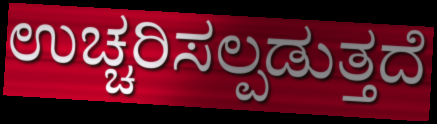
ಉಚ್ಚರಿಸಲ್ಪಡುತ್ತದೆ